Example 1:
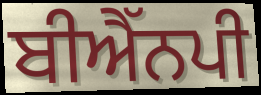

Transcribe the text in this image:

ਬੀਐੱਨਪੀ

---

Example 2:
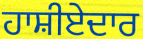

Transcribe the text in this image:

ਹਾਸ਼ੀਏਦਾਰ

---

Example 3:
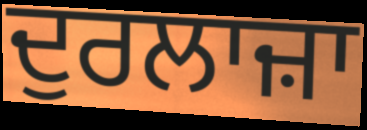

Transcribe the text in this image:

ਦੁਰਲਾਜ਼ਾ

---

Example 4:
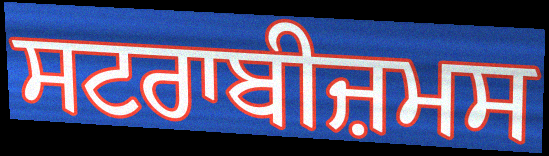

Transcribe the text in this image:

ਸਟਰਾਬੀਜ਼ਮਸ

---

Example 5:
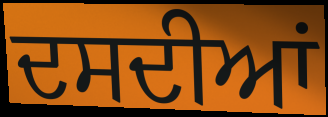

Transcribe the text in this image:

ਦਸਦੀਆਂ